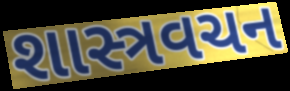
શાસ્ત્રવચન